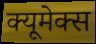
क्यूमेक्स